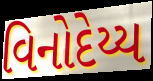
વિનોદેય્ય